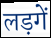
लड़गें